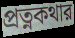
প্রত্নকথার